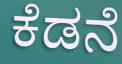
ಕೆಡನೆ